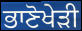
ਭਾਣੋਖੇੜੀ